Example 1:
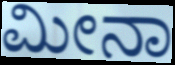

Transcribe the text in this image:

ಮೀನಾ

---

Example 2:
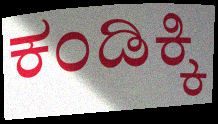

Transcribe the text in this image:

ಕಂಡಿಕ್ಕಿ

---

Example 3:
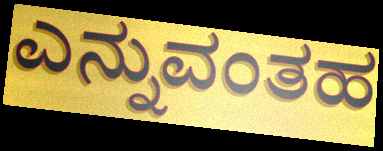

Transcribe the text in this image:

ಎನ್ನುವಂತಹ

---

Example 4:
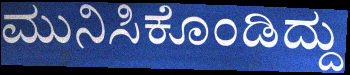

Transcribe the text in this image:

ಮುನಿಸಿಕೊಂಡಿದ್ದು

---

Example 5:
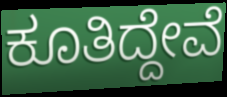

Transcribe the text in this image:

ಕೂತಿದ್ದೇವೆ